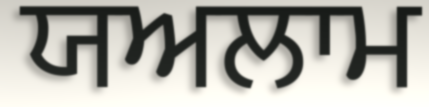
ਯਅਲਾਮ